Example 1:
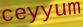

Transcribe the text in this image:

ceyyum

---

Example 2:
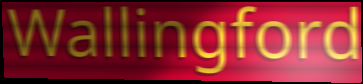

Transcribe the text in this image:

Wallingford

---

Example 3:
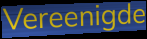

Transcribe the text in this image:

Vereenigde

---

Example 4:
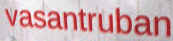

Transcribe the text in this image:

vasantruban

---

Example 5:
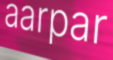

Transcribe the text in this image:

aarpar